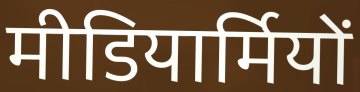
मीडियार्मियों